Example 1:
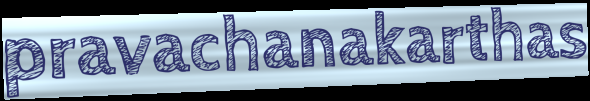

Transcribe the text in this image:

pravachanakarthas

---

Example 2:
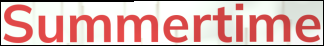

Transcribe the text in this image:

Summertime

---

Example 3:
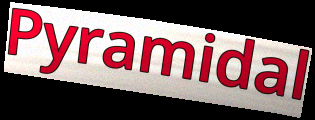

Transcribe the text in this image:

Pyramidal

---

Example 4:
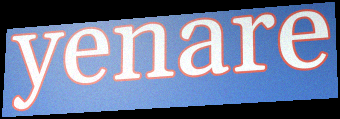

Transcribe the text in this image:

yenare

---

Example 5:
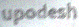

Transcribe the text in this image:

upodesh